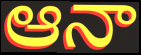
ఆనా